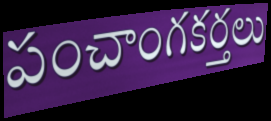
పంచాంగకర్తలు